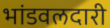
भांडवलदारी